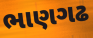
ભાણગઢ